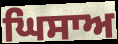
ਘਿਸਾਅ